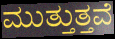
ಮುತ್ತುತ್ತವೆ